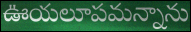
ఊయలూపమన్నాను